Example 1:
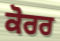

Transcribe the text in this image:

ਕੋਰਰ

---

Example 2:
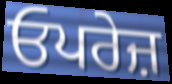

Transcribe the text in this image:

ਓਪਰੇਜ਼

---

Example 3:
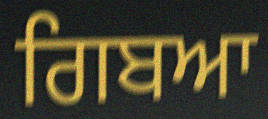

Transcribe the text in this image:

ਗਿਬਆ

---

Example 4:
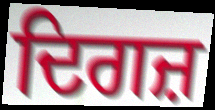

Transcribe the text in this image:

ਦਿਗਜ਼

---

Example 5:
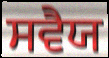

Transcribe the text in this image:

ਸਵੈਯ